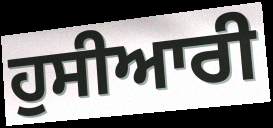
ਹੁਸੀਆਰੀ